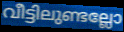
വീട്ടിലുണ്ടല്ലോ